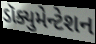
ડૉક્યુમેન્ટેશન